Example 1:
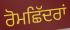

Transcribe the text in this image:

ਰੋਮਛਿੱਦਰਾਂ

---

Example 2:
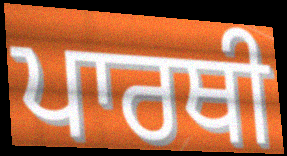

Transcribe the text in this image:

ਪਾਰਥੀ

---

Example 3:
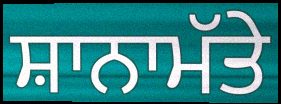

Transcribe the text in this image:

ਸ਼ਾਨਾਮੱਤੇ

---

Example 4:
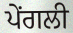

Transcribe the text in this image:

ਪੇਂਗਲੀ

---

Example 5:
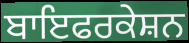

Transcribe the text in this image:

ਬਾਇਫਰਕੇਸ਼ਨ